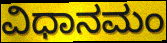
ವಿಧಾನಮಂ